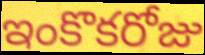
ఇంకొకరోజు